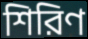
শিরিণ